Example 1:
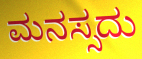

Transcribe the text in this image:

ಮನಸ್ಸದು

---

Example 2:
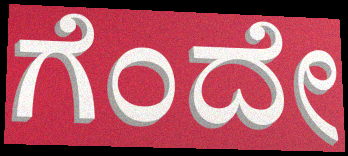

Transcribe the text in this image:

ಗೆಂದೇ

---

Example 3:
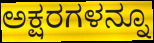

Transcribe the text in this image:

ಅಕ್ಷರಗಳನ್ನೂ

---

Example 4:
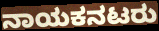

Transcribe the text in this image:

ನಾಯಕನಟರು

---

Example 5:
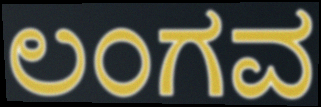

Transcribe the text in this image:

ಲಂಗವ